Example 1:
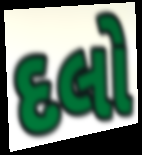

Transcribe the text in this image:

દલો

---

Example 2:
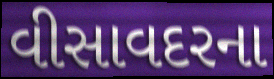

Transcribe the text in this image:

વીસાવદરના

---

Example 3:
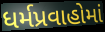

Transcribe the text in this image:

ધર્મપ્રવાહોમાં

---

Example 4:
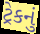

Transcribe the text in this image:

ટ્રેકનું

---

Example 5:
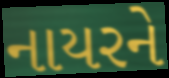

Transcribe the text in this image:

નાયરને